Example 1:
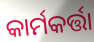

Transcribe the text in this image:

କାର୍ମକର୍ତ୍ତା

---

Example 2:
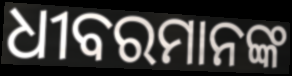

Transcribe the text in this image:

ଧୀବରମାନଙ୍କ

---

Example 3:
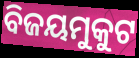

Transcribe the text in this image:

ବିଜୟମୁକୁଟ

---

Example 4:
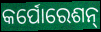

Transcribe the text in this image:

କର୍ପୋରେଶନ୍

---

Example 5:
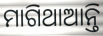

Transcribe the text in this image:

ମାଗିଥାଆନ୍ତି